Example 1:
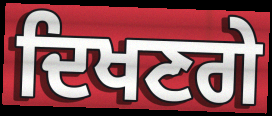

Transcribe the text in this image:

ਦਿਖਣਗੇ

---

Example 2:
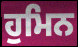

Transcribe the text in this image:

ਹੁਮਿਨ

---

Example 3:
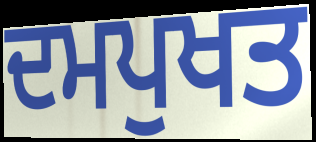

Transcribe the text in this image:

ਦਮਪੁਖਤ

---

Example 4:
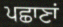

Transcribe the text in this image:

ਪਛਾਣਾਂ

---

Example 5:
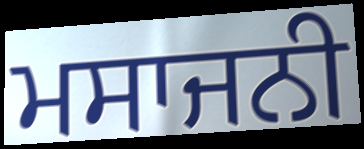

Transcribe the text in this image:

ਮਸਾਜਨੀ